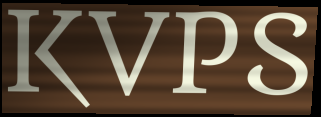
KVPS